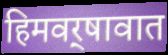
हिमवर्षावात